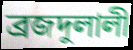
ব্রজদুলালী